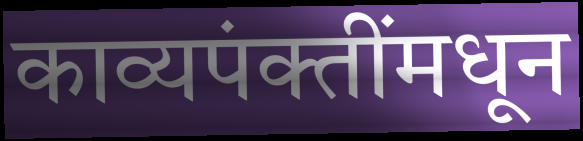
काव्यपंक्तींमधून